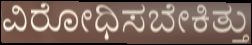
ವಿರೋಧಿಸಬೇಕಿತ್ತು